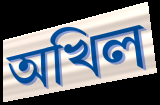
অখিল